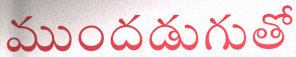
ముందడుగుతో